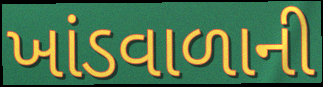
ખાંડવાળાની